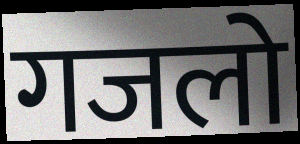
गजलो